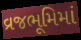
વ્રજભૂમિમાં